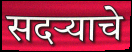
सदऱ्याचे